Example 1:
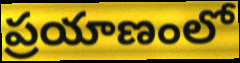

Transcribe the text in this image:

ప్రయాణంలో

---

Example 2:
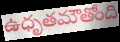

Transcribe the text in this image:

ఉధృతమౌతోంది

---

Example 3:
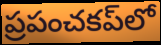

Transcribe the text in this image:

ప్రపంచకప్‌లో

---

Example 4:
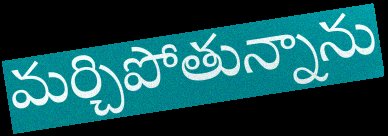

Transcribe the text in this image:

మర్చిపోతున్నాను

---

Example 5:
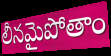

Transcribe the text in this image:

లీనమైపోతాం